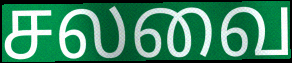
சலவை